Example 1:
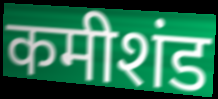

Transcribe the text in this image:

कमीशंड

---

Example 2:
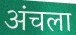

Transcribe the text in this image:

अंचला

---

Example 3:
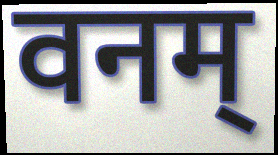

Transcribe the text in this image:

वनम्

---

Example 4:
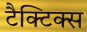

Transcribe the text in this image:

टैक्टिक्स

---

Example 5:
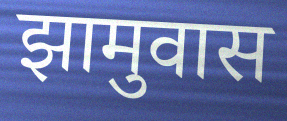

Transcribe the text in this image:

झामुवास